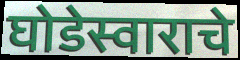
घोडेस्वाराचे